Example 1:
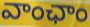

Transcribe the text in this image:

వాంఛాం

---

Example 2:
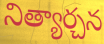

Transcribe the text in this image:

నిత్యార్చన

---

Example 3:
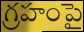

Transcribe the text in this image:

గ్రహంపై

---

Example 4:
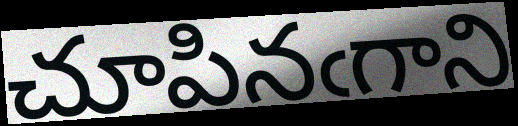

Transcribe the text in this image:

చూపినఁగాని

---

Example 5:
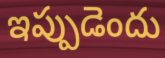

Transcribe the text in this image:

ఇప్పుడెందు